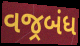
વજ્રબંધ